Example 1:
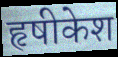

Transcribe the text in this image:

हृषीकेश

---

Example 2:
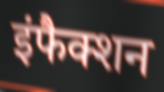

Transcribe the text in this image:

इंफैक्शन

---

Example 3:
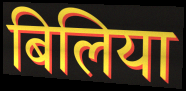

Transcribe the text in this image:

बिलिया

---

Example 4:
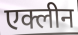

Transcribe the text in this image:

एक्लीन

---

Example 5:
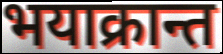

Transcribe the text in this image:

भयाक्रान्त